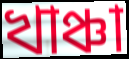
খাঞ্চা